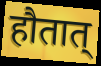
हौतात्